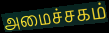
அமைச்சகம்